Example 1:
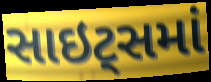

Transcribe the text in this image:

સાઇટ્સમાં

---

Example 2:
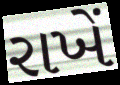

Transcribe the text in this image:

રાખેં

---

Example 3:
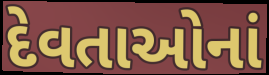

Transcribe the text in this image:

દેવતાઓનાં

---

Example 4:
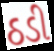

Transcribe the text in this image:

ઠડી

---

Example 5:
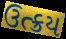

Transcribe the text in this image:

ઉત્ક્રય